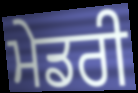
ਮੇਡਰੀ